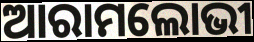
ଆରାମଲୋଭୀ